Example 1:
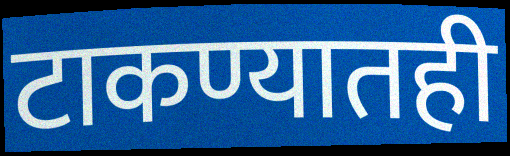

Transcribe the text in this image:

टाकण्यातही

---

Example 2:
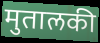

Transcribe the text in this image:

मुतालकी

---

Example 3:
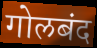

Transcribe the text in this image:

गोलबंद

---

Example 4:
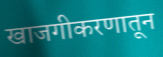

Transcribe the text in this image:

खाजगीकरणातून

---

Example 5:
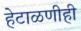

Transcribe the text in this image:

हेटाळणीही